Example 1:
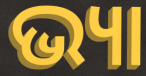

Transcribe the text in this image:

ଭ୍ୟା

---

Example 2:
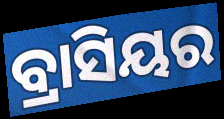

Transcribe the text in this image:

ବ୍ରାସିୟର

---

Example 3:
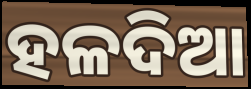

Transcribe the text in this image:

ହଳଦିଆ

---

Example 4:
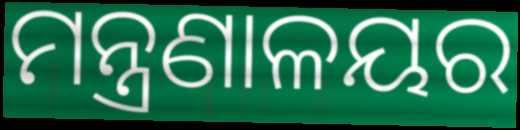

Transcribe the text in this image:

ମନ୍ତ୍ରଣାଳୟର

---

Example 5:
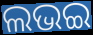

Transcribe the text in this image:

ଲଭଇ